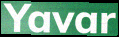
Yavar